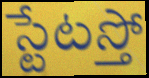
స్టేటస్తో